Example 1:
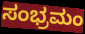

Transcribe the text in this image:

ಸಂಭ್ರಮಂ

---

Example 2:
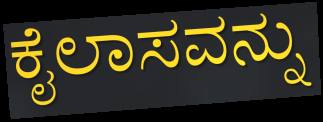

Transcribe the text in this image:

ಕೈಲಾಸವನ್ನು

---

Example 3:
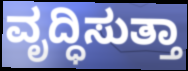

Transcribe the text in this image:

ವೃದ್ಧಿಸುತ್ತಾ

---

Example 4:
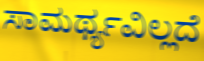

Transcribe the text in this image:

ಸಾಮರ್ಥ್ಯವಿಲ್ಲದೆ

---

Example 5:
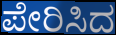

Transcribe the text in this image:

ಪೇರಿಸಿದ